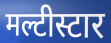
मल्टीस्टार